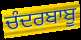
ਚੰਦਰਬਾਬੂ